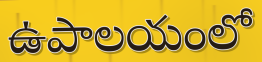
ఉపాలయంలో